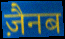
ज़ैनब